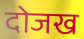
दोजख